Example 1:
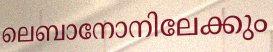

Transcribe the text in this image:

ലെബാനോനിലേക്കും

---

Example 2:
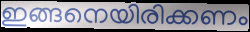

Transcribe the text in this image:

ഇങ്ങനെയിരിക്കണം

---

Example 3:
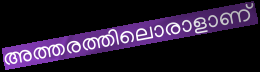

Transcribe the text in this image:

അത്തരത്തിലൊരാളാണ്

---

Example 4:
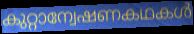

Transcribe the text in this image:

കുറ്റാന്വേഷണകഥകൾ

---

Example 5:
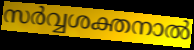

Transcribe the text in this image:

സർവ്വശക്തനാൽ